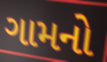
ગામનો